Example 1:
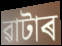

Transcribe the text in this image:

ৱাটাৰ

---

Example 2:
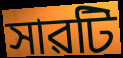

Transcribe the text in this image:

সাৱটি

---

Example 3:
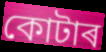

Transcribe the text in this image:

কোটাৰ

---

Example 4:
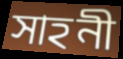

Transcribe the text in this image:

সাহনী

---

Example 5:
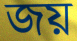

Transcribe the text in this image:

জয়